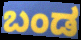
ಬಂಡ